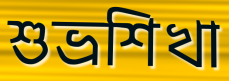
শুভ্রশিখা